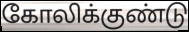
கோலிக்குண்டு